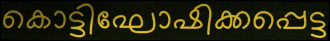
കൊട്ടിഘോഷിക്കപ്പെട്ട